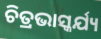
ଚିତ୍ରଭାସ୍କର୍ଯ୍ୟ